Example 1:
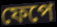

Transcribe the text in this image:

ফেপে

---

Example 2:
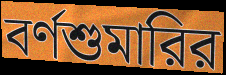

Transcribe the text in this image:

বর্ণশুমারির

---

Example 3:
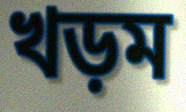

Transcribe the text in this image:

খড়ম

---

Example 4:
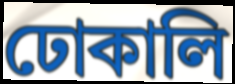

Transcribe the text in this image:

ঢোকালি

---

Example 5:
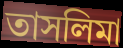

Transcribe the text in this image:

তাসলিমা